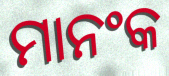
ମାନଂକ